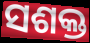
ସଶକ୍ତ